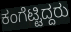
ಕಂಗೆಟ್ಟಿದ್ದರು